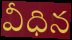
వీధిన